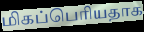
மிகப்பெரியதாக